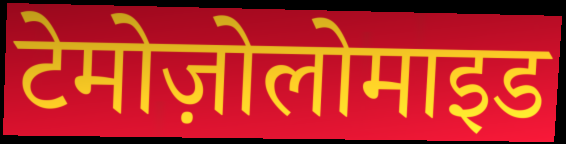
टेमोज़ोलोमाइड